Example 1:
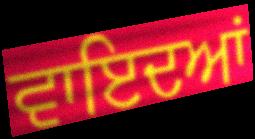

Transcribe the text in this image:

ਵਾਇਦਆਂ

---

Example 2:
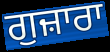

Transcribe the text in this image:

ਗੁਜ਼ਾਰਾ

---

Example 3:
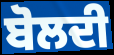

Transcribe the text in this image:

ਬੋਲਦੀ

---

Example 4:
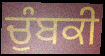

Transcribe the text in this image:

ਚੁੰਬਕੀ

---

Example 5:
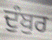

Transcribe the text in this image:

ਦੁੰਬੁਰ